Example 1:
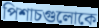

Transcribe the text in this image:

পিশাচগুলোকে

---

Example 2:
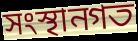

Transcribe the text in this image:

সংস্থানগত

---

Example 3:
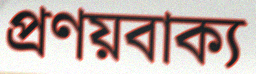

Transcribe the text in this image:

প্রণয়বাক্য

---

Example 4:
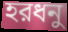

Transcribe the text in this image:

হরধনু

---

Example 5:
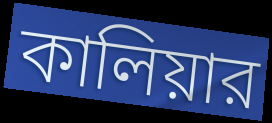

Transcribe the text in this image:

কালিয়ার